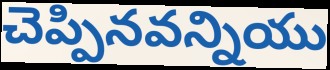
చెప్పినవన్నియు